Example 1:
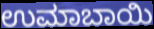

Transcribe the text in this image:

ಉಮಾಬಾಯಿ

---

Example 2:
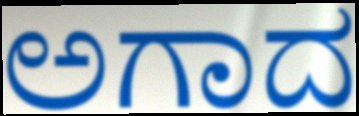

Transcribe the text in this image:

ಅಗಾದ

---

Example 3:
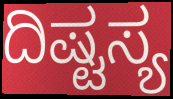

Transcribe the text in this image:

ದಿಷ್ಟಸ್ಯ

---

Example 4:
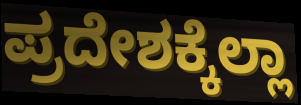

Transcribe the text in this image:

ಪ್ರದೇಶಕ್ಕೆಲ್ಲಾ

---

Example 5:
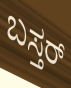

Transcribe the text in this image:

ಬಸ್ತರ್